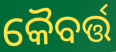
କୈବର୍ତ୍ତ